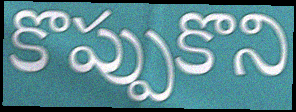
కొప్పుకొని